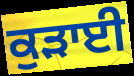
ਕੁੜਾਈ